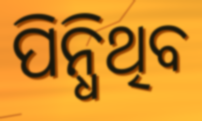
ପିନ୍ଧିଥିବ